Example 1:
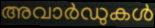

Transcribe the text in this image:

അവാർഡുകൾ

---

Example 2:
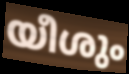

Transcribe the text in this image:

യീശും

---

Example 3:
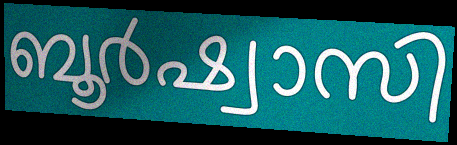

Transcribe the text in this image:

ബൂർഷ്വാസി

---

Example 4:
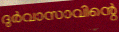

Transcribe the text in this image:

ദുർവാസാവിന്റെ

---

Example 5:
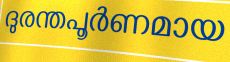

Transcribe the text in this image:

ദുരന്തപൂർണമായ